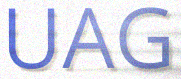
UAG